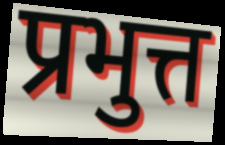
प्रभुत्त